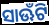
ସାଊଁଟି